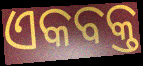
ଏକବକ୍ତ